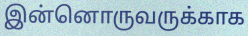
இன்னொருவருக்காக